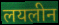
लयलीन